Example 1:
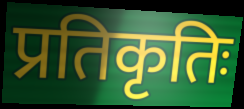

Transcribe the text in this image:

प्रतिकृतिः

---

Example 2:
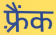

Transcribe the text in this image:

फ़्रैंक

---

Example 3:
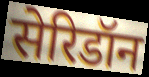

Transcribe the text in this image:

सेरिडॉन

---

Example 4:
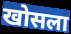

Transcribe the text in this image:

खोसला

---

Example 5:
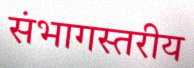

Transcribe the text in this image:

संभागस्तरीय